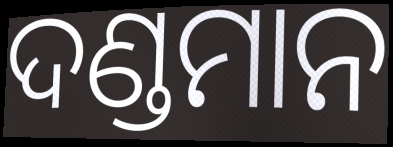
ଦଣ୍ଡମାନ